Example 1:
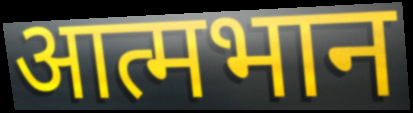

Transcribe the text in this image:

आत्मभान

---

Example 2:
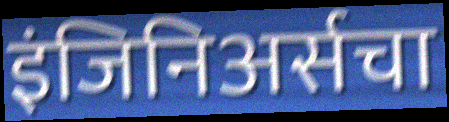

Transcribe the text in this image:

इंजिनिअर्सचा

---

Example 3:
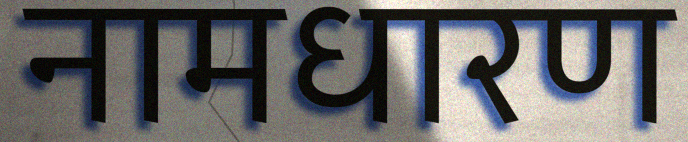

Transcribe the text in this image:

नामधारण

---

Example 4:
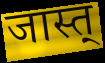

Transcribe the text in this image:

जास्त्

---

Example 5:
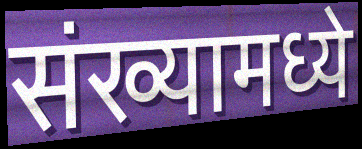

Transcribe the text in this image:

संख्यामध्ये